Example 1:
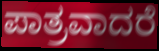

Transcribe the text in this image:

ಪಾತ್ರವಾದರೆ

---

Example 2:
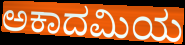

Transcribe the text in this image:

ಅಕಾದಮಿಯ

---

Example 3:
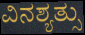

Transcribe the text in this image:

ವಿನಶ್ಯತ್ಸು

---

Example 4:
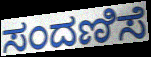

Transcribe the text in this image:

ಸಂದಣಿಸೆ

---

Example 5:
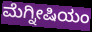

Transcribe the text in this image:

ಮೆಗ್ನೀಷಿಯಂ